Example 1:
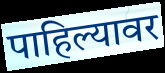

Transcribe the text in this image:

पाहिल्यावर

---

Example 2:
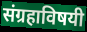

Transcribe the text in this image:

संग्रहाविषयी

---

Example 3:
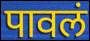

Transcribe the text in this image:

पावलं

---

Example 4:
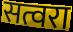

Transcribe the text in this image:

सत्वरा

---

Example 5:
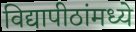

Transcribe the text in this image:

विद्यापीठांमध्ये